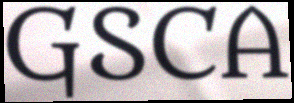
GSCA